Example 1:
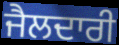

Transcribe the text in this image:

ਜੈਲਦਾਰੀ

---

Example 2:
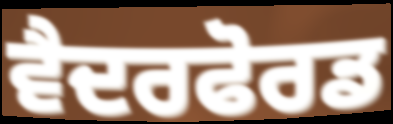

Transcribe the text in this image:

ਵੈਦਰਫੋਰਡ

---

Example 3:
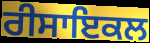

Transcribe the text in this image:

ਰੀਸਾਇਕਲ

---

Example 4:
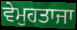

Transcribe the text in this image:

ਵੇਮੁਹਤਾਜਾ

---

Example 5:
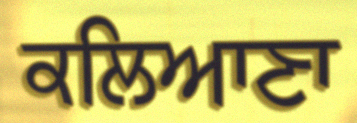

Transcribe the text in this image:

ਕਲਿਆਣਾ